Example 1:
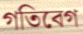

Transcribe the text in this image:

গতিবেগ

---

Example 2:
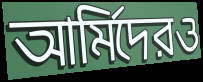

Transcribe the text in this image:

আর্মিদেরও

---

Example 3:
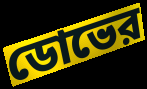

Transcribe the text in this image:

ডোভের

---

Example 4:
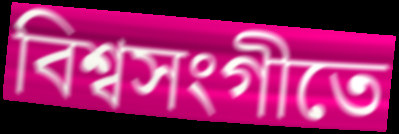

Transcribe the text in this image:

বিশ্বসংগীতে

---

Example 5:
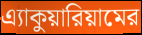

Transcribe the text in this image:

এ্যাকুয়ারিয়ামের